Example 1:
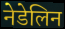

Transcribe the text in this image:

नेडेलिन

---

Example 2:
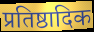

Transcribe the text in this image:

प्रतिष्ठादिक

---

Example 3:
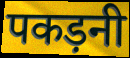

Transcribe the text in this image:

पकड़नी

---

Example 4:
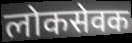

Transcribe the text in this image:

लोकसेवक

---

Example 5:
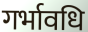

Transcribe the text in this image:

गर्भावधि